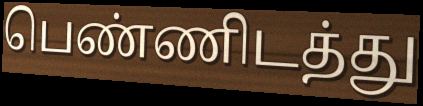
பெண்ணிடத்து